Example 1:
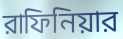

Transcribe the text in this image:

রাফিনিয়ার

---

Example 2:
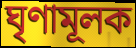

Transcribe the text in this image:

ঘৃণামূলক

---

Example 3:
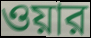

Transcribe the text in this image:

ওয়ার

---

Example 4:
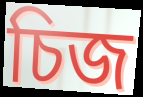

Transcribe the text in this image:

চিজ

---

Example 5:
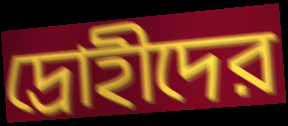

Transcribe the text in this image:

দ্রোহীদের